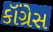
કૉંગ્રેસ